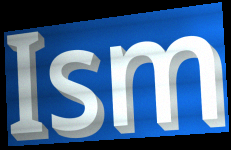
Ism